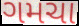
ગમચા